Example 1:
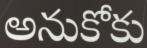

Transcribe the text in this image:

అనుకోకు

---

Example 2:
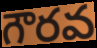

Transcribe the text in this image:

గౌరవ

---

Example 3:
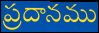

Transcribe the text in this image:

ప్రదానము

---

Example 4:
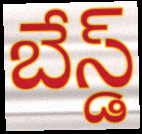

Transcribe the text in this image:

బేస్డ్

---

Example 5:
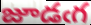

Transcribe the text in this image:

జూడఁగ